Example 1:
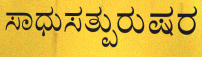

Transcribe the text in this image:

ಸಾಧುಸತ್ಪುರುಷರ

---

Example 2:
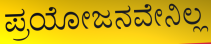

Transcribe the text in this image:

ಪ್ರಯೋಜನವೇನಿಲ್ಲ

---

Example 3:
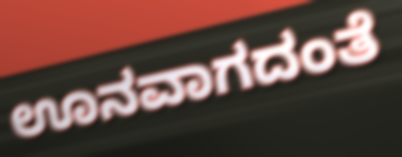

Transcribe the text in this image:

ಊನವಾಗದಂತೆ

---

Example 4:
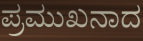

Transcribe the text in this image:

ಪ್ರಮುಖನಾದ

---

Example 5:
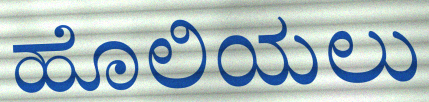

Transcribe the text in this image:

ಹೊಲಿಯಲು